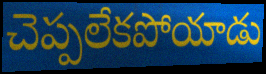
చెప్పలేకపోయాడు